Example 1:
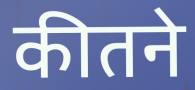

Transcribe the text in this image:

कीतने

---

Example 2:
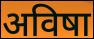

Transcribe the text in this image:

अविषा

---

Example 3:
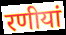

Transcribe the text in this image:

रणीयां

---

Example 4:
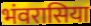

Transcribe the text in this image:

भंवरासिया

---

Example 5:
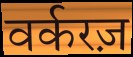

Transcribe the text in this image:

वर्करज़